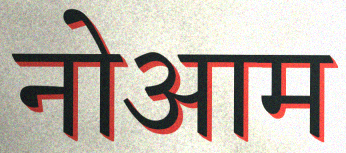
नोआम